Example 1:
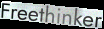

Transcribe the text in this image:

Freethinker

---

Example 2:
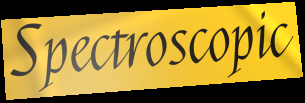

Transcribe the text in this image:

Spectroscopic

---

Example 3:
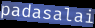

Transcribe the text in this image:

padasalai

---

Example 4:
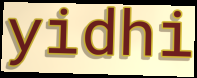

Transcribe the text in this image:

yidhi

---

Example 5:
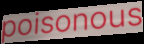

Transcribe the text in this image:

poisonous